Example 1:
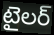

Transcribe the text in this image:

టైలర్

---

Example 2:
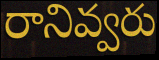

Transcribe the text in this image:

రానివ్వరు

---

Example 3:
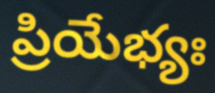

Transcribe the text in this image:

ప్రియేభ్యః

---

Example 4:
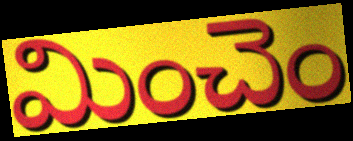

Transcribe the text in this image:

మించెం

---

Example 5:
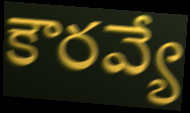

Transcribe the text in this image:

కౌరవ్యే